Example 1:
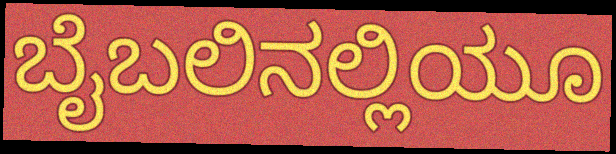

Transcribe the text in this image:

ಬೈಬಲಿನಲ್ಲಿಯೂ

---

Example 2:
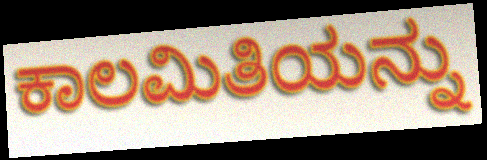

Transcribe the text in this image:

ಕಾಲಮಿತಿಯನ್ನು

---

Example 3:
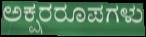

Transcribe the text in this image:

ಅಕ್ಷರರೂಪಗಳು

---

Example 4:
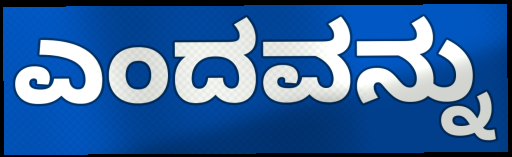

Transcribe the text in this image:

ಎಂದವನ್ನು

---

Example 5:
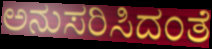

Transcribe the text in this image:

ಅನುಸರಿಸಿದಂತೆ